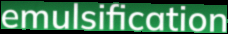
emulsification